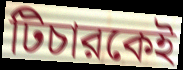
টিচারকেই